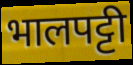
भालपट्टी